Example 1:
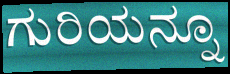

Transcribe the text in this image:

ಗುರಿಯನ್ನೂ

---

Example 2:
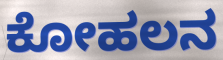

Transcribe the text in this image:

ಕೋಹಲನ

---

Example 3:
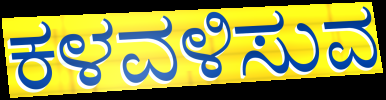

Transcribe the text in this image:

ಕಳವಳಿಸುವ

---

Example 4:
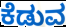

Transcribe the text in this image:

ಕೆಡುವ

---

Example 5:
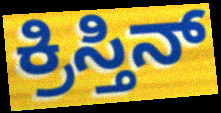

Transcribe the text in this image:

ಕ್ರಿಸ್ತಿನ್